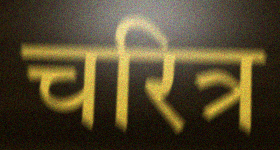
चरित्र